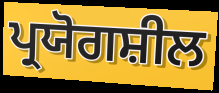
ਪ੍ਰਯੋਗਸ਼ੀਲ